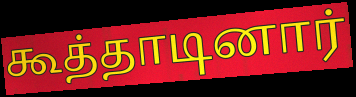
கூத்தாடினார்